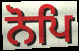
ਨੋਪਿ